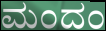
ಮಂದಂ